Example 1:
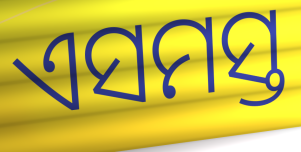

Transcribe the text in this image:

ଏସମସ୍ତ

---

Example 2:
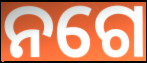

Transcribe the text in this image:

ନଗେ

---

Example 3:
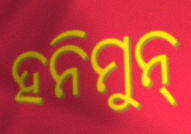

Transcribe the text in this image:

ହନିମୁନ୍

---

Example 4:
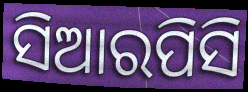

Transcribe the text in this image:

ସିଆରପିସି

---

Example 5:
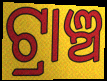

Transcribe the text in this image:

ଟ୍ରାଞ୍ଚ